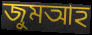
জুমআহ